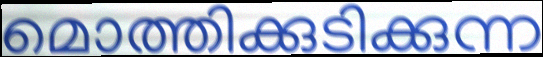
മൊത്തിക്കുടിക്കുന്ന